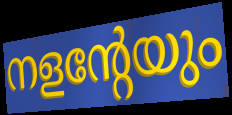
നളന്റേയും